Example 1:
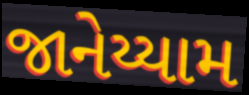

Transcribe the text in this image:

જાનેય્યામ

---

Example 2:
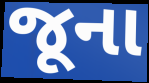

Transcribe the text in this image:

જૂના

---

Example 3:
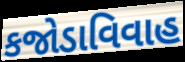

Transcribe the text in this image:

કજોડાવિવાહ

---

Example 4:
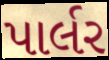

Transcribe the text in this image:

પાર્લર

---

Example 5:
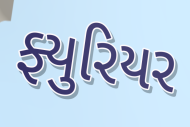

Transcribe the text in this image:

ફ્યુરિયર